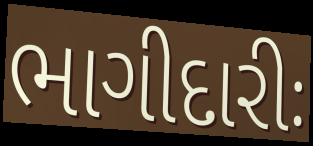
ભાગીદારીઃ